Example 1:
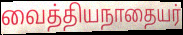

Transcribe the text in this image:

வைத்தியநாதையர்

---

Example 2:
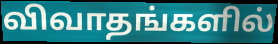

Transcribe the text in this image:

விவாதங்களில்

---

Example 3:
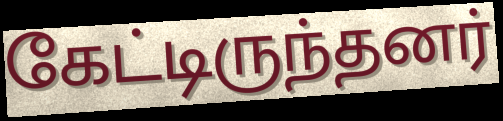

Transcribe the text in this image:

கேட்டிருந்தனர்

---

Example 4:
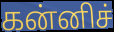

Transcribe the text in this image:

கன்னிச்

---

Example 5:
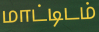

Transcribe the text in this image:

மாட்டிடம்